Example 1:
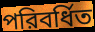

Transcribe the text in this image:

পরিবর্ধিত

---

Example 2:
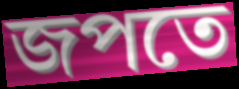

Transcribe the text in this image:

জপতে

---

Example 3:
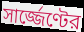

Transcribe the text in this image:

সার্জ্জেণ্টের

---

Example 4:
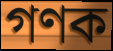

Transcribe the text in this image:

গণক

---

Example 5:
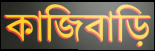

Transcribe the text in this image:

কাজিবাড়ি